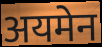
अयमेन